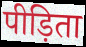
पीड़िता